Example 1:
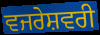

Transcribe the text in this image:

ਵਜਰੇਸ਼ਵਰੀ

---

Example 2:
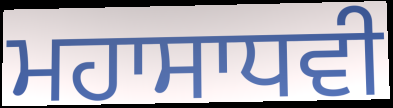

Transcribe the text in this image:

ਮਹਾਸਾਧਵੀ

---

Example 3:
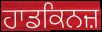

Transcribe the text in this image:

ਹਾਡਕਿਨਜ਼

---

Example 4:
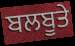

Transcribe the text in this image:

ਬਲਬੂਤੇ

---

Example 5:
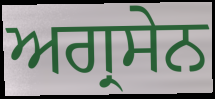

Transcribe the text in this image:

ਅਗ੍ਰਸੇਨ